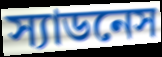
স্যাডনেস